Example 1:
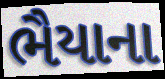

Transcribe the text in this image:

ભૈયાના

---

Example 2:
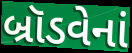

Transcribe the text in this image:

બ્રૉડવેનાં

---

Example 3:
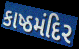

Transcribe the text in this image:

કાષ્ઠમંદિર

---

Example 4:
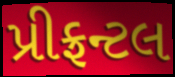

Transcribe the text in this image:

પ્રીફ્રન્ટલ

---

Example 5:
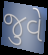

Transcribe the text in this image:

જુવે